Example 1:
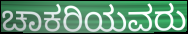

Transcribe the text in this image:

ಚಾಕರಿಯವರು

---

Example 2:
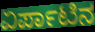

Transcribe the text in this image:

ಏರ್ಪಾಟಿನ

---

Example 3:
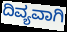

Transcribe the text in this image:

ದಿವ್ಯವಾಗಿ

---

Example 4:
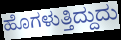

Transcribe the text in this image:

ಹೊಗಳುತ್ತಿದ್ದುದು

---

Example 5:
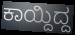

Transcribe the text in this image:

ಕಾಯ್ದಿದ್ದ